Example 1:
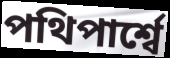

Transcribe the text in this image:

পথিপার্শ্বে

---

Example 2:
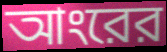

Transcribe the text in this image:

আংরের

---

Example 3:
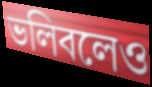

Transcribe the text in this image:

ভলিবলেও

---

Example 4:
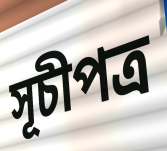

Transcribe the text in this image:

সূচীপত্র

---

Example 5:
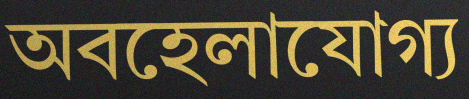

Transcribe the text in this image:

অবহেলাযোগ্য